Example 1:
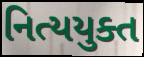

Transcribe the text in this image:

નિત્યયુક્ત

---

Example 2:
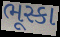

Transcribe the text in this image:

ભૂસ્કા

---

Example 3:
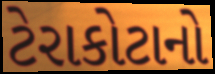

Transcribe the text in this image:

ટેરાકોટાનો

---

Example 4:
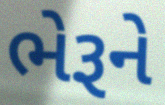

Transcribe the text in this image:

ભેરૂને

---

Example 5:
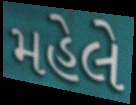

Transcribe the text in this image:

મહેલે